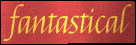
fantastical